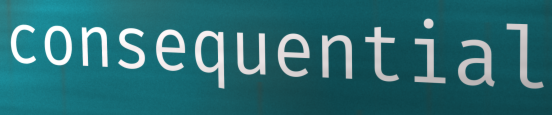
consequential